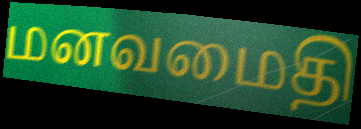
மனவமைதி